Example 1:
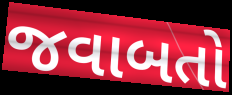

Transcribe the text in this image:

જવાબતો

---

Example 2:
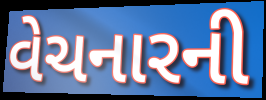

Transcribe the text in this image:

વેચનારની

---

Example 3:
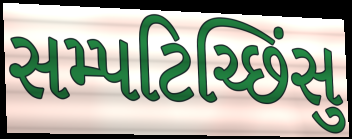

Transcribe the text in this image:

સમ્પટિચ્છિંસુ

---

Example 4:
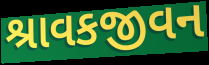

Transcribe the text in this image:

શ્રાવકજીવન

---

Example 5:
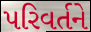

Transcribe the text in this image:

પરિવર્તને